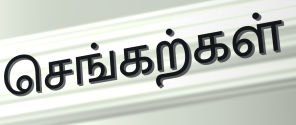
செங்கற்கள்